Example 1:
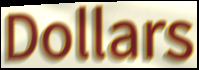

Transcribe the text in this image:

Dollars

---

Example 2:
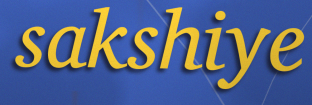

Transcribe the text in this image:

sakshiye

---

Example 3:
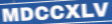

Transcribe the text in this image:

MDCCXLV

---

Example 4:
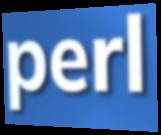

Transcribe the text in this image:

perl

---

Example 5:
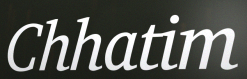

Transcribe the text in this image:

Chhatim